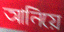
আনিয়ে